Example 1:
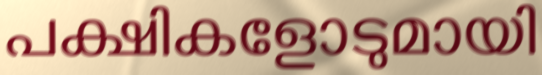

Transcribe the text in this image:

പക്ഷികളോടുമായി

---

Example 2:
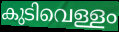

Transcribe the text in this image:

കുടിവെള്ളം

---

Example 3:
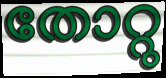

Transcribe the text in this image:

തോറ്റു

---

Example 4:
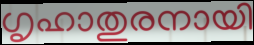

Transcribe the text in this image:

ഗൃഹാതുരനായി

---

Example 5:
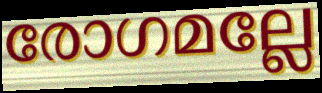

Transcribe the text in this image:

രോഗമല്ലേ